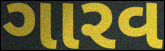
ગારવ